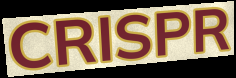
CRISPR